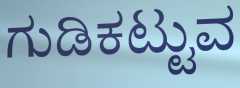
ಗುಡಿಕಟ್ಟುವ